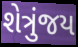
શેત્રુંજય